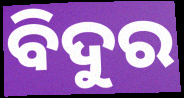
ବିଦୁର